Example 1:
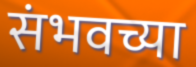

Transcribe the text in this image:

संभवच्या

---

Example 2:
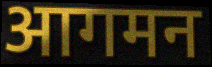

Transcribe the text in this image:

आगमन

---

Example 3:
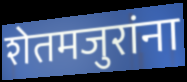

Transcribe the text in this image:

शेतमजुरांना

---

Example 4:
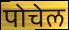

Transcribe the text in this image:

पोचेल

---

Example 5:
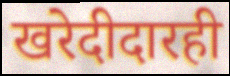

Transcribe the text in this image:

खरेदीदारही